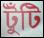
টুঁটি